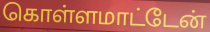
கொள்ளமாட்டேன்